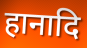
हानादि